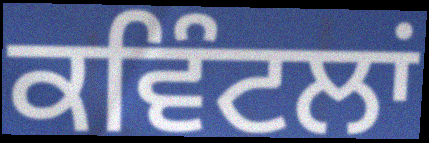
ਕਵਿੰਟਲਾਂ